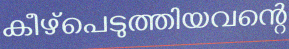
കീഴ്പെടുത്തിയവന്റെ